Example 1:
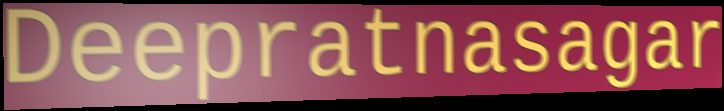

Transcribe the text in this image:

Deepratnasagar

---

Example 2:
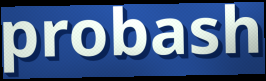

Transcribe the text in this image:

probash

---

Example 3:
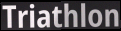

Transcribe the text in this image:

Triathlon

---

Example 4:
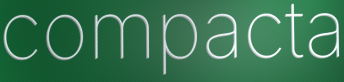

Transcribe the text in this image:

compacta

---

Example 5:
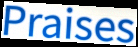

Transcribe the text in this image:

Praises